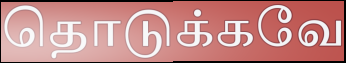
தொடுக்கவே